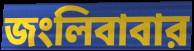
জংলিবাবার